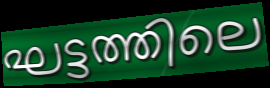
ഘട്ടത്തിലെ